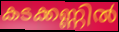
കടക്കണ്ണിൽ